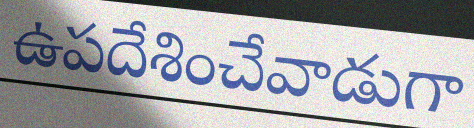
ఉపదేశించేవాడుగా